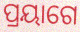
ପ୍ରୟାଗେ